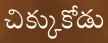
చిక్కుకోడు